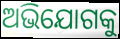
ଅଭିଯୋଗକୁ